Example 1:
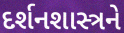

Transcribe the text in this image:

દર્શનશાસ્ત્રને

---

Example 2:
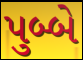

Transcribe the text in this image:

પુબ્બે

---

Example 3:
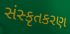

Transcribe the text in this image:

સંસ્કૃતકરણ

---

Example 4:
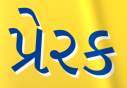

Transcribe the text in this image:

પ્રેરક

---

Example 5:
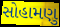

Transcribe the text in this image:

સોહામણુ